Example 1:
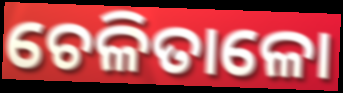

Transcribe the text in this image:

ଚେଳିତାଳୋ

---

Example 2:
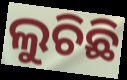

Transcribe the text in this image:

ଲୁଚିଛି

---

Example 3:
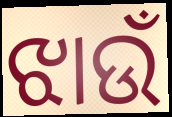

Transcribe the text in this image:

ଝାଉଁ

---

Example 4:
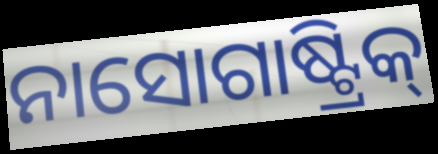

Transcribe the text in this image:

ନାସୋଗାଷ୍ଟ୍ରିକ୍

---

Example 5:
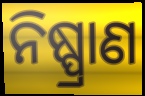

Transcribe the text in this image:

ନିଷ୍ପ୍ରାଣ